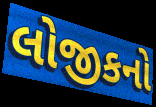
લોજીકનો